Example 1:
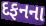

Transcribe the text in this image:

દફનના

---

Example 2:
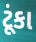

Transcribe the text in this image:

ટૂંકા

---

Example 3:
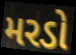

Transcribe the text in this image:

મરડો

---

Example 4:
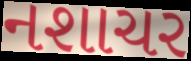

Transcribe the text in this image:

નશાચર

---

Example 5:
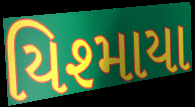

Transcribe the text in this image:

યિશ્માયા